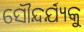
ସୌନ୍ଦର୍ଯ୍ୟକୁ